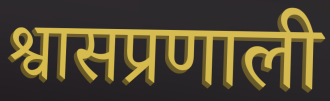
श्वासप्रणाली